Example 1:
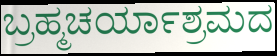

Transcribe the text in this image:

ಬ್ರಹ್ಮಚರ್ಯಾಶ್ರಮದ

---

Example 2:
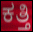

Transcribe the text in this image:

ಕತ್ತಿ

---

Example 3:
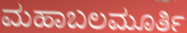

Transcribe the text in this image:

ಮಹಾಬಲಮೂರ್ತಿ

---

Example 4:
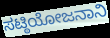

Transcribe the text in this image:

ಸಟ್ಠಿಯೋಜನಾನಿ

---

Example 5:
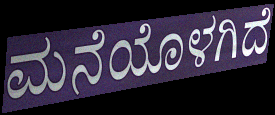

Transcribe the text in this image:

ಮನೆಯೊಳಗಿದೆ